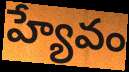
హ్యేవం